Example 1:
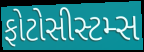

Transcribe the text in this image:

ફોટોસીસ્ટમ્સ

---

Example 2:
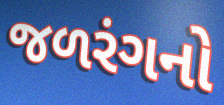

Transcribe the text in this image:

જળરંગનો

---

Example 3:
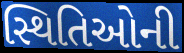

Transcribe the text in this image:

સ્થિતિઓની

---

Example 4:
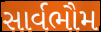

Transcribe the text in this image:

સાર્વભૌમ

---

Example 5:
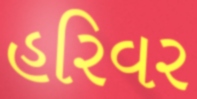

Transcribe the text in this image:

હરિવર